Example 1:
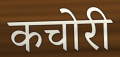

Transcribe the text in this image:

कचोरी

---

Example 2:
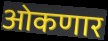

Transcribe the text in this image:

ओकणार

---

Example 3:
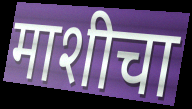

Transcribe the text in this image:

माशीचा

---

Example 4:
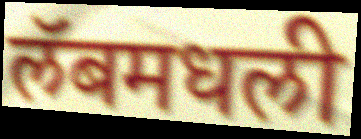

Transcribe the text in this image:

लॅबमधली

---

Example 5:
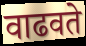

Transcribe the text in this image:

वाढवते